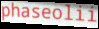
phaseolii